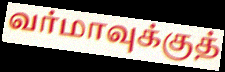
வர்மாவுக்குத்